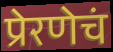
प्रेरणेचं